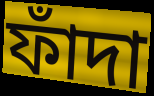
ফাঁদা